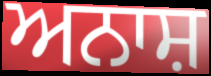
ਅਨਾਸ਼